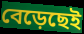
বেড়েছেই